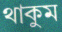
থাকুম